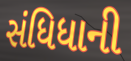
સંધિધાની